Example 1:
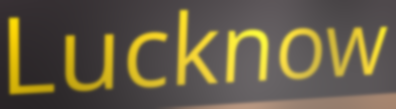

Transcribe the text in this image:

Lucknow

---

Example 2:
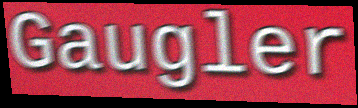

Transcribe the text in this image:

Gaugler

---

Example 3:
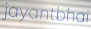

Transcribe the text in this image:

jayantbhai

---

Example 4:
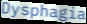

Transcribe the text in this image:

Dysphagia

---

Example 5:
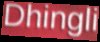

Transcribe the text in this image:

Dhingli